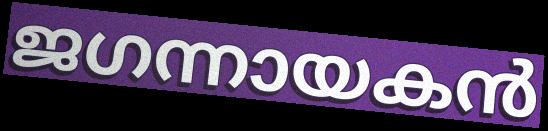
ജഗന്നായകൻ